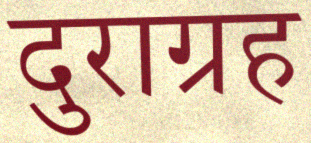
दुराग्रह